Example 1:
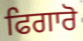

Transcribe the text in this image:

ਫਿਗਾਰੋ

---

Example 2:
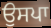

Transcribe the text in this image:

ਉਸਪਾ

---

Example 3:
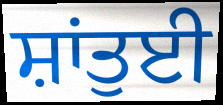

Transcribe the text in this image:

ਸ਼ਾਂਤੁਈ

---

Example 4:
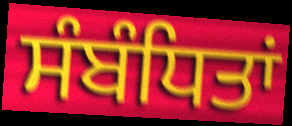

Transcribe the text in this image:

ਸੰਬੰਧਿਤਾਂ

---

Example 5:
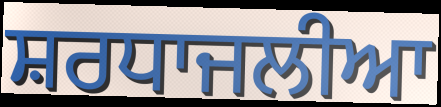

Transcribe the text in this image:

ਸ਼ਰਧਾਜਲੀਆ